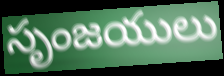
సృంజయులు